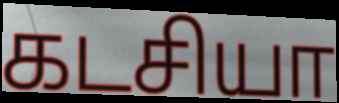
கடசியா